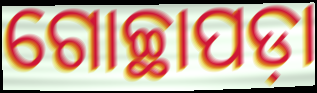
ଗୋଚ୍ଛାପଡ଼ା